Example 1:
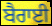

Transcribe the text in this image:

ਬੈਰਾਈ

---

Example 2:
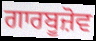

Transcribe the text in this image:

ਗਾਰਬੂਜ਼ੋਵ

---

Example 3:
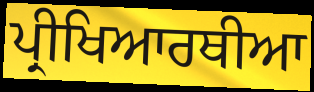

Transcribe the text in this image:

ਪ੍ਰੀਖਿਆਰਥੀਆ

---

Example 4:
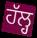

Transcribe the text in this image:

ਹੱਲ੍ਹ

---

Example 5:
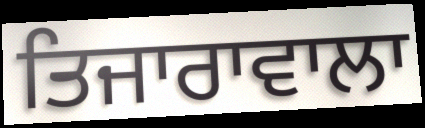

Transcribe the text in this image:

ਤਿਜਾਰਾਵਾਲਾ